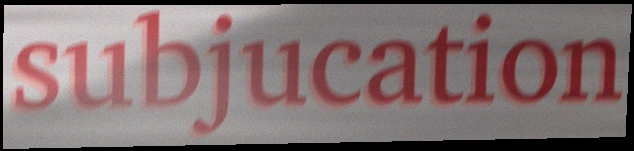
subjucation